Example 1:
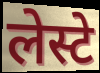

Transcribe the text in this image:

लेस्टे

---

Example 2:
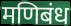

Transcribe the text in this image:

मणिबंध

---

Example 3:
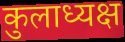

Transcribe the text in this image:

कुलाध्यक्ष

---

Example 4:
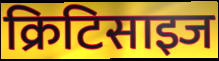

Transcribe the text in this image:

क्रिटिसाइज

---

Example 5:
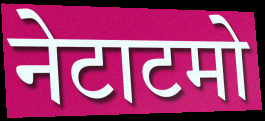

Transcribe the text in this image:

नेटाटमो